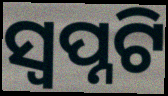
ସ୍ୱପ୍ନଟି